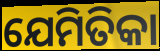
ଯେମିତିକା